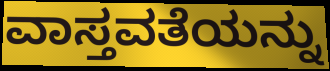
ವಾಸ್ತವತೆಯನ್ನು